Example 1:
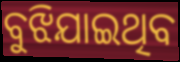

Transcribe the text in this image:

ବୁଝିଯାଇଥିବ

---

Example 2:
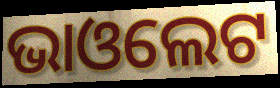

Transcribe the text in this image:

ଭାଓଲେଟ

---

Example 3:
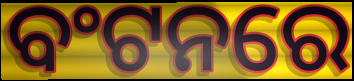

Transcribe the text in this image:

ବଂଟନରେ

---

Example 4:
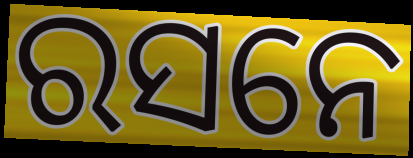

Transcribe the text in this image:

ରସନେ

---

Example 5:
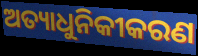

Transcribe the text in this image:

ଅତ୍ୟାଧୁନିକୀକରଣ